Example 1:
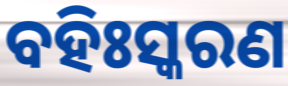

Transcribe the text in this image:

ବହିଃସ୍କରଣ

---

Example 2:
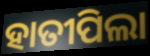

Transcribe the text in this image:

ହାତୀପିଲା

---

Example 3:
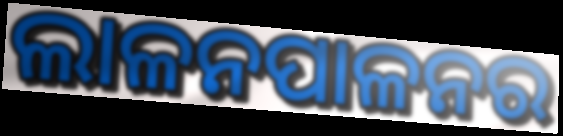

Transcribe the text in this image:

ଲାଳନପାଳନର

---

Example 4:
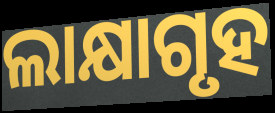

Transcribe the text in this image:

ଲାକ୍ଷାଗୃହ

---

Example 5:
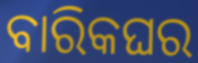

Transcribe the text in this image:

ବାରିକଘର